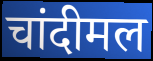
चांदीमल